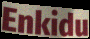
Enkidu